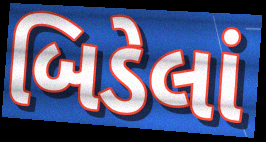
બિડેલાં